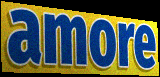
amore